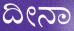
ದೀನಾ